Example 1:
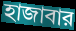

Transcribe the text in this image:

হাজাবার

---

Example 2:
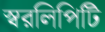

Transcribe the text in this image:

স্বরলিপিটি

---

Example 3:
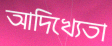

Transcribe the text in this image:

আদিখ্যেতা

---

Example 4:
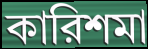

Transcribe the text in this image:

কারিশমা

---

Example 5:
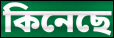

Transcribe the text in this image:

কিনেছে